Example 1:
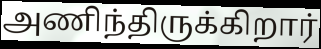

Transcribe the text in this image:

அணிந்திருக்கிறார்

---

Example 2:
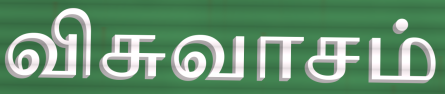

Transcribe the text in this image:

விசுவாசம்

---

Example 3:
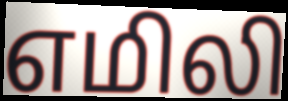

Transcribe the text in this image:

எமிலி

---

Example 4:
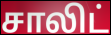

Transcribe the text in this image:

சாலிட்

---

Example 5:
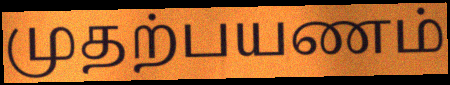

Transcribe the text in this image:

முதற்பயணம்